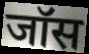
जॉस